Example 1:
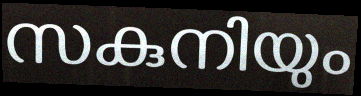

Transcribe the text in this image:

സകുനിയും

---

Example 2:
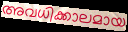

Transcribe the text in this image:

അവധിക്കാലമായ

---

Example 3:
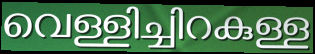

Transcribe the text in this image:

വെള്ളിച്ചിറകുള്ള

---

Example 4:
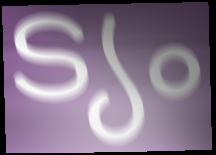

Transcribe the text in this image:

ട്യം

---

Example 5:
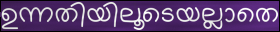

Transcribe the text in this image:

ഉന്നതിയിലൂടെയല്ലാതെ